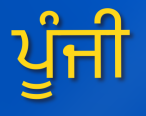
ਪੂੰਜੀ